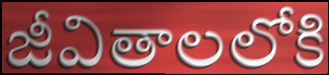
జీవితాలలోకి